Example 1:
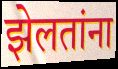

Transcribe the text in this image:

झेलतांना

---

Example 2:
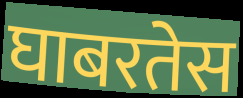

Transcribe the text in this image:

घाबरतेस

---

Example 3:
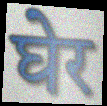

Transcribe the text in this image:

घेर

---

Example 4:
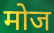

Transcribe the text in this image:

मोज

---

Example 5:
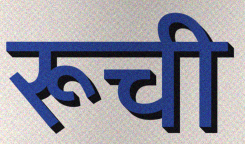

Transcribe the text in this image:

रूची